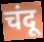
चंदू